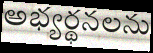
అభ్యర్థనలను